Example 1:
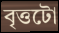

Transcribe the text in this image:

বৃত্তটো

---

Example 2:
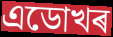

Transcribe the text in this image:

এডোখৰ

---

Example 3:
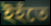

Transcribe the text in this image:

ইহঁতে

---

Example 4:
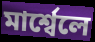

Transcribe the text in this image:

মাৰ্শ্বেলে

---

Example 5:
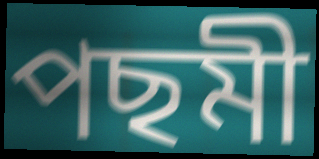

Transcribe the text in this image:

পছমী